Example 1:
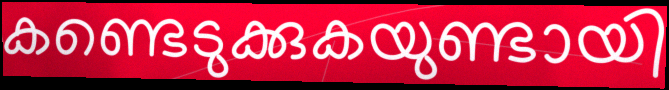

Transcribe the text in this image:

കണ്ടെടുക്കുകയുണ്ടായി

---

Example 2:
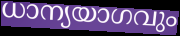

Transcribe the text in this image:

ധാന്യയാഗവും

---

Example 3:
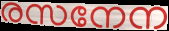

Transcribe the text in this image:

രസനേന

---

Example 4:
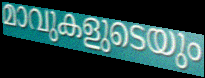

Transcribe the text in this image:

മാവുകളുടെയും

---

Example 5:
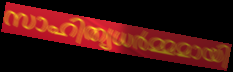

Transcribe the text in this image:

സാഹിത്യധർമ്മമായി